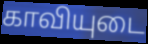
காவியுடை